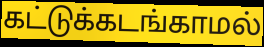
கட்டுக்கடங்காமல்